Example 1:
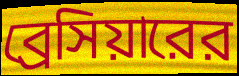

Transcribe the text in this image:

ব্রেসিয়ারের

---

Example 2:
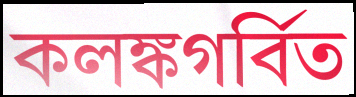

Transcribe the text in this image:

কলঙ্কগর্বিত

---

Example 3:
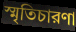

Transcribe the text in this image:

স্মৃতিচারণা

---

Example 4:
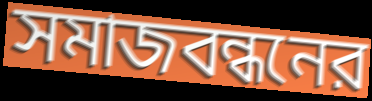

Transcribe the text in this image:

সমাজবন্ধনের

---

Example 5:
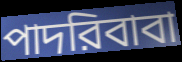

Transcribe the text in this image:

পাদরিবাবা